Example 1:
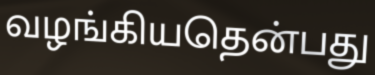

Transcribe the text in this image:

வழங்கியதென்பது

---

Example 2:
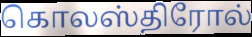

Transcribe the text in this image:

கொலஸ்திரோல்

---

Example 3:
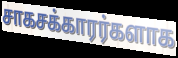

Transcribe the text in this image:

சாகசக்காரர்களாக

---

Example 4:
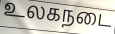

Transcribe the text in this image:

உலகநடை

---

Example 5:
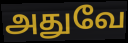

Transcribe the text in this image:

அதுவே